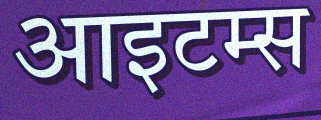
आइटम्‍स